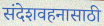
संदेशवहनासाठी